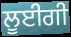
ਲੂਈਗੀ